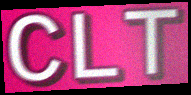
CLT